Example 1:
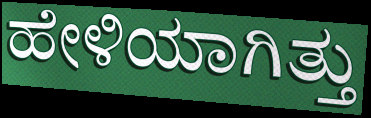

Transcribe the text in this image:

ಹೇಳಿಯಾಗಿತ್ತು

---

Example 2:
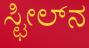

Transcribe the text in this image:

ಸ್ಟೀಲ್‌ನ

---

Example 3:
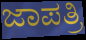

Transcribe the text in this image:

ಜಾಪತ್ರಿ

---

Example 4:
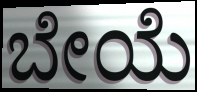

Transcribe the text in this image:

ಬೇಯೆ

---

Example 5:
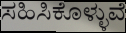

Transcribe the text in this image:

ಸಹಿಸಿಕೊಳ್ಳುವೆ